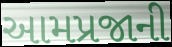
આમપ્રજાની